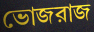
ভোজরাজ